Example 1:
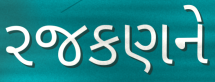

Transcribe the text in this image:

રજકણને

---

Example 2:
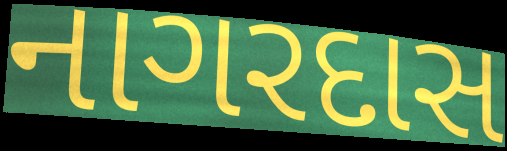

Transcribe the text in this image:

નાગરદાસ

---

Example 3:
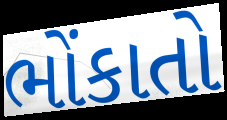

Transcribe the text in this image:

ભોંકાતો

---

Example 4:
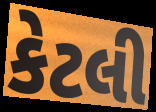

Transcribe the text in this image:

કેટલી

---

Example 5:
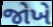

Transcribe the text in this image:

જોખે